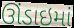
ઊંડાઇમાં